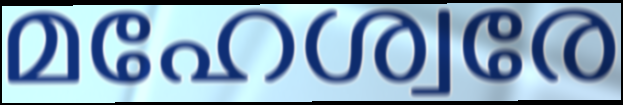
മഹേശ്വരേ